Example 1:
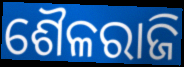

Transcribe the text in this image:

ଶୈଳରାଜି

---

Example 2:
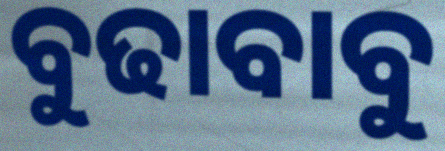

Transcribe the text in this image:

ବୁଢାବାବୁ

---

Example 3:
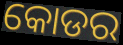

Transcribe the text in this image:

କୋଡର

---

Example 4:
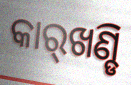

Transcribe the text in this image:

କାର୍‌ଖଣ୍ଡି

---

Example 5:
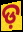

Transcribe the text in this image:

ଡ଼